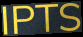
IPTS